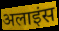
अलाइंस